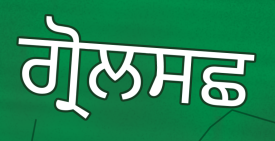
ਗ੍ਰੋਲਸਛ